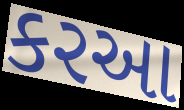
કરઆ